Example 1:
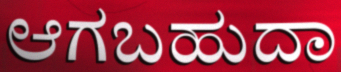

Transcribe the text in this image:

ಆಗಬಹುದಾ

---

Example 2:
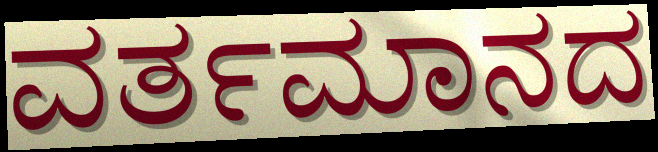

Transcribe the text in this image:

ವರ್ತಮಾನದ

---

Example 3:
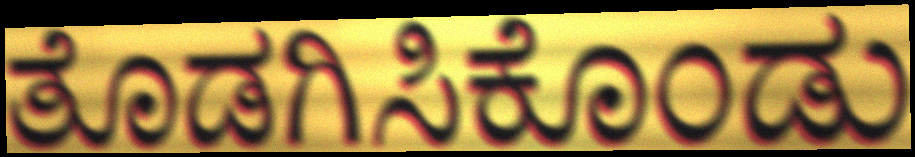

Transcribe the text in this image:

ತೊಡಗಿಸಿಕೊಂಡು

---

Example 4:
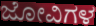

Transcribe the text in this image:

ಜೋವಿಗಳ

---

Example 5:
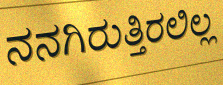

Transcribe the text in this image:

ನನಗಿರುತ್ತಿರಲಿಲ್ಲ